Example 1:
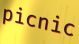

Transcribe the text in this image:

picnic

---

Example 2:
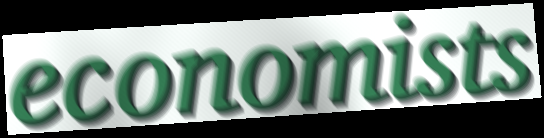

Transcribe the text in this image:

economists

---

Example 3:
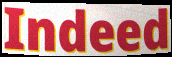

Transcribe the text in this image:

Indeed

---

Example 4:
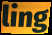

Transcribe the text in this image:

ling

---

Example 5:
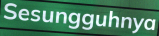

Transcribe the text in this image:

Sesungguhnya